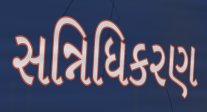
સન્નિધિકરણ